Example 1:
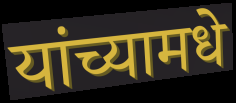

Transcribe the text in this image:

यांच्यामधे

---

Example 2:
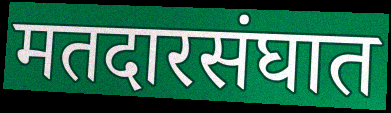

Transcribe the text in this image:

मतदारसंघात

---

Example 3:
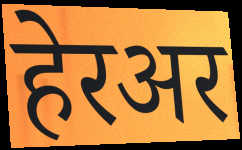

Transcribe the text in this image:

हेरअर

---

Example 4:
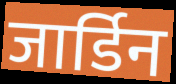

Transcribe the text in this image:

जार्डिन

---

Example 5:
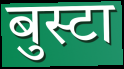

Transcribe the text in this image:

बुस्टा